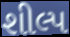
શીલ્પ